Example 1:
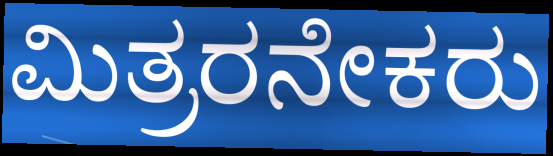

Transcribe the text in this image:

ಮಿತ್ರರನೇಕರು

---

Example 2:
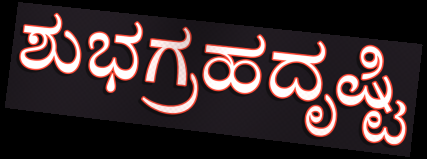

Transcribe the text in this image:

ಶುಭಗ್ರಹದೃಷ್ಟಿ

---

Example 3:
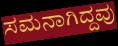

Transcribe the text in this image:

ಸಮನಾಗಿದ್ದವು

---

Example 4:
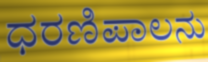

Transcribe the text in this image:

ಧರಣಿಪಾಲನು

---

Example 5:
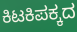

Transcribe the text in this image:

ಕಿಟಕಿಪಕ್ಕದ